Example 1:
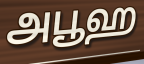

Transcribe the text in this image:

அபூஹ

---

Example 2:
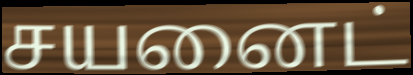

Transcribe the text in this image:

சயனைட்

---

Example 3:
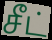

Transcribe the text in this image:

சீட்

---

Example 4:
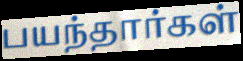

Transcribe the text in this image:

பயந்தார்கள்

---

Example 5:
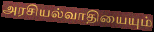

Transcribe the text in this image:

அரசியல்வாதியையும்